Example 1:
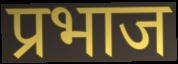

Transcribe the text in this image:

प्रभाज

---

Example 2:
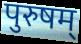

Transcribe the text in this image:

पुरुषम्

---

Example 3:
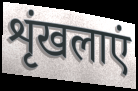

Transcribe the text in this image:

शृंखलाएं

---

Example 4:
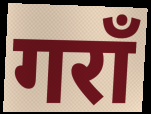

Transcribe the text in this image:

गराँ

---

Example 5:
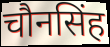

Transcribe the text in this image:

चौनसिंह